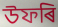
উফৰি